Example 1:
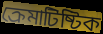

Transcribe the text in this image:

ক্রেমাটিষ্টিক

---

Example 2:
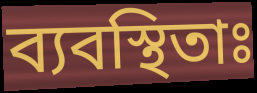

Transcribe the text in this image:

ব্যবস্থিতাঃ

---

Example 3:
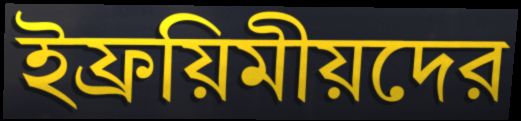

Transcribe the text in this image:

ইফ্রয়িমীয়দের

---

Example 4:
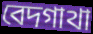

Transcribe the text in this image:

বেদগাথা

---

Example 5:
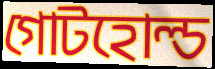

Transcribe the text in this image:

গোটহোল্ড